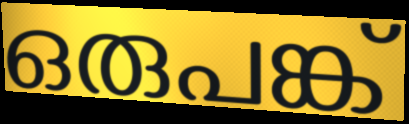
ഒരുപങ്ക്